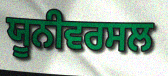
ਯੂਨੀਵਰਸਲ